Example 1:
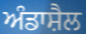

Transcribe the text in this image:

ਅੰਡਾਸ਼ੈਲ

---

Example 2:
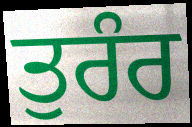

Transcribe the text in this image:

ਤੁਰੰਰ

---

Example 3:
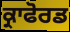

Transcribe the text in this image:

ਕ੍ਰਾਫੋਰਡ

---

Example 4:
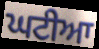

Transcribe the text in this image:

ਘਟੀਆ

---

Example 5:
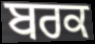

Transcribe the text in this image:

ਬਰਕ